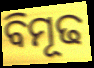
ବିମୂଢ